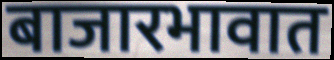
बाजारभावात